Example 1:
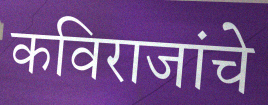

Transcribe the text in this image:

कविराजांचे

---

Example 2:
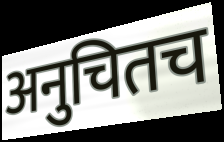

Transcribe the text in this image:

अनुचितच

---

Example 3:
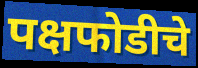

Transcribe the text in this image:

पक्षफोडीचे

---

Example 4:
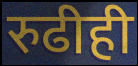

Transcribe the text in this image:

रुढीही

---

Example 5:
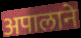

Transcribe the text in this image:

अपालाने